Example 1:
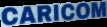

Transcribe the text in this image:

CARICOM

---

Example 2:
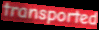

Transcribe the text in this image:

transported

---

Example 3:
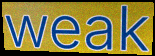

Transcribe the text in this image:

weak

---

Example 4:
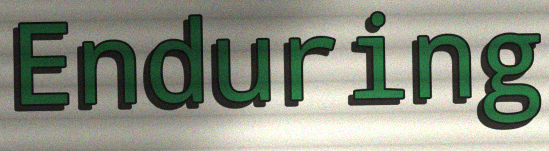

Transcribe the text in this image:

Enduring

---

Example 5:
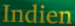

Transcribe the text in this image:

Indien